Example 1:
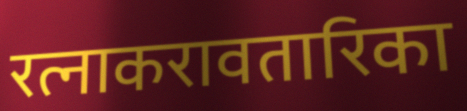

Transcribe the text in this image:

रत्नाकरावतारिका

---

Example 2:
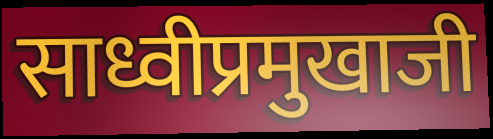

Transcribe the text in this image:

साध्वीप्रमुखाजी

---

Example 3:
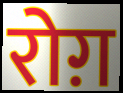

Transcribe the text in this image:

रोग़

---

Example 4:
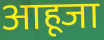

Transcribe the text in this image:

आहूजा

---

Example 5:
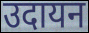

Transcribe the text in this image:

उदायन